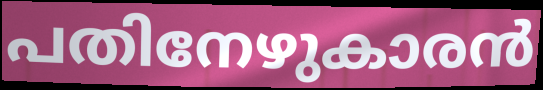
പതിനേഴുകാരൻ